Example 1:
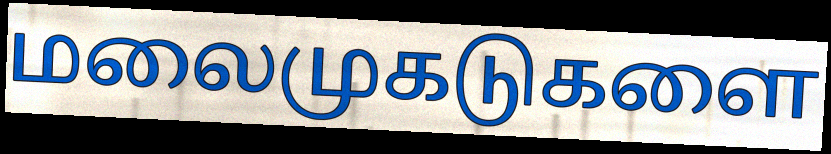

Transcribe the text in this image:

மலைமுகடுகளை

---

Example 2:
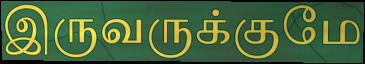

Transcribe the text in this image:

இருவருக்குமே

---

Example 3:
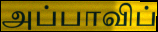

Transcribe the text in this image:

அப்பாவிப்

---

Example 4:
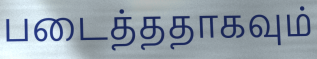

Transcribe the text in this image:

படைத்ததாகவும்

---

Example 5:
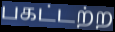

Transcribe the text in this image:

பகட்டற்ற